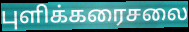
புளிக்கரைசலை